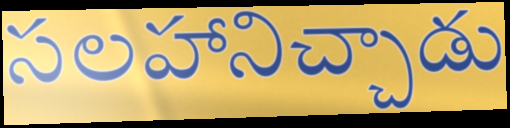
సలహానిచ్చాడు